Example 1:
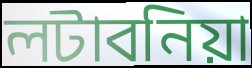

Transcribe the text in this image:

লটাবনিয়া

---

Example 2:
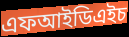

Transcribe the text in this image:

এফআইডিএইচ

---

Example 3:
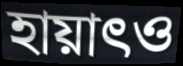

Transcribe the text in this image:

হায়াৎও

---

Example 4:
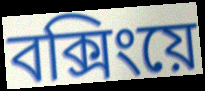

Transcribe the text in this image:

বক্সিংয়ে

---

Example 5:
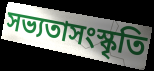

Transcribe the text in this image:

সভ্যতাসংস্কৃতি